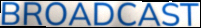
BROADCAST